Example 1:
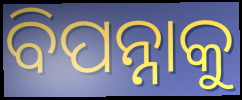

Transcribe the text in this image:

ବିପନ୍ନାକୁ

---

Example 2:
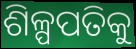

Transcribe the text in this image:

ଶିଳ୍ପପତିକୁ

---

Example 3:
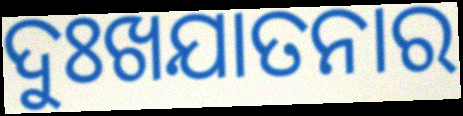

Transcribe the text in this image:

ଦୁଃଖଯାତନାର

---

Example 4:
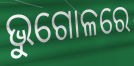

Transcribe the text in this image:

ଭୁଗୋଳରେ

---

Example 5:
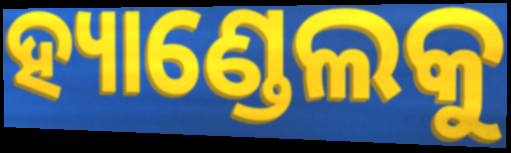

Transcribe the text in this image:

ହ୍ୟାଣ୍ଡେଲକୁ